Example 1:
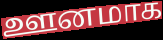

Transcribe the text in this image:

ஊனமாக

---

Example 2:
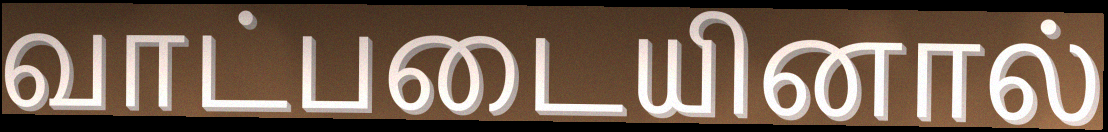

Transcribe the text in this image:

வாட்படையினால்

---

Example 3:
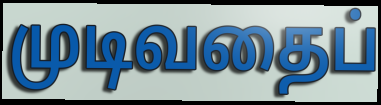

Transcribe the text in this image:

முடிவதைப்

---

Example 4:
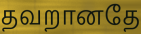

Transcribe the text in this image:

தவறானதே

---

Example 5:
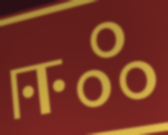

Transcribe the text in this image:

ஈஃ